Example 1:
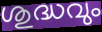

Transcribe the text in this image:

ശുദ്ധവും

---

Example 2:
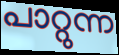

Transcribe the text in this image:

പാറ്റുന്ന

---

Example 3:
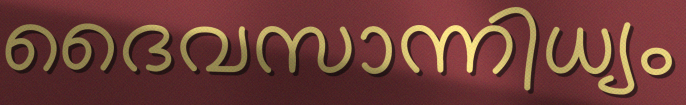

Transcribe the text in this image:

ദൈവസാന്നിധ്യം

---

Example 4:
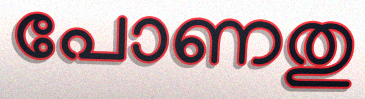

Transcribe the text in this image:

പോണതു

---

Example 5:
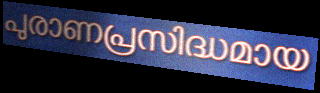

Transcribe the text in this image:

പുരാണപ്രസിദ്ധമായ